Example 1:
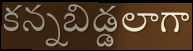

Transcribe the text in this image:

కన్నబిడ్డలాగా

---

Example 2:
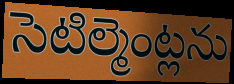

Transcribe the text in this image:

సెటిల్మెంట్లను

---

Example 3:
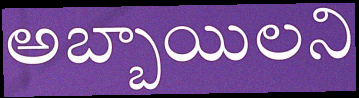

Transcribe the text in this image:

అబ్బాయిలని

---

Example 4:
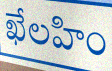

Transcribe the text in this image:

ఖేలహిం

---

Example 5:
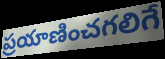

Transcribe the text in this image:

ప్రయాణించగలిగే